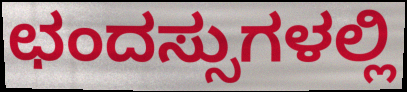
ಛಂದಸ್ಸುಗಳಲ್ಲಿ